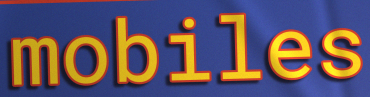
mobiles